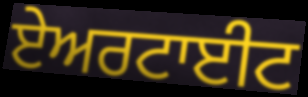
ਏਅਰਟਾਈਟ